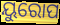
ୟୁରୋପ